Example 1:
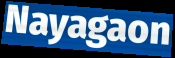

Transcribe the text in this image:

Nayagaon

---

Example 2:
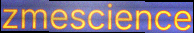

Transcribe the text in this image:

zmescience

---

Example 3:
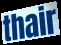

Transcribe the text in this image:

thair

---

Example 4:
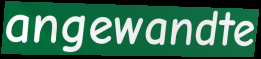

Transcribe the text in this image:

angewandte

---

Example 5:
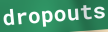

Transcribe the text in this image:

dropouts